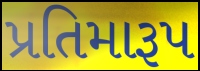
પ્રતિમારૂપ